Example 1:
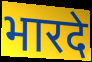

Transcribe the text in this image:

भारदे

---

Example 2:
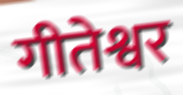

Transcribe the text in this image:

गीतेश्वर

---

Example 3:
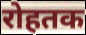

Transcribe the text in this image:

रोहतक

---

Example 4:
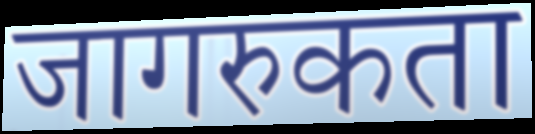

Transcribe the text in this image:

जागरुकता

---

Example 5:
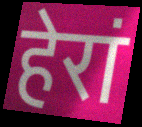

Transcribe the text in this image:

हेरां